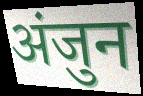
अंजुन